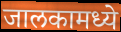
जालकामध्ये